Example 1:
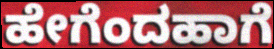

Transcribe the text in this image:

ಹೇಗೆಂದಹಾಗೆ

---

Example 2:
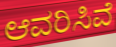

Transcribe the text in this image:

ಆವರಿಸಿವೆ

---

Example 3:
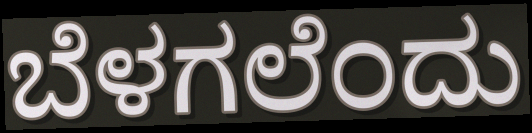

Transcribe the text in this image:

ಬೆಳಗಲೆಂದು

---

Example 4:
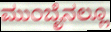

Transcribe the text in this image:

ಮುಂಬೈನಲ್ಲೂ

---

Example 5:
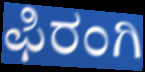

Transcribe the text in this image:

ಫಿರಂಗಿ